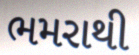
ભમરાથી